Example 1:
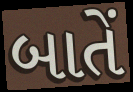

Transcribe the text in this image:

બાતેં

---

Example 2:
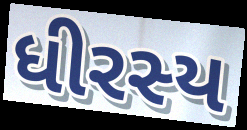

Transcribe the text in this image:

ધીરસ્ય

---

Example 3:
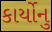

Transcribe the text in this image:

કાર્યોનુ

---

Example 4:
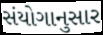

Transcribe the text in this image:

સંયોગાનુસાર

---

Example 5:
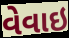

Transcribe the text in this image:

વેવાઇ